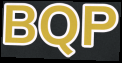
BQP